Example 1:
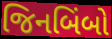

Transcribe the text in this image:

જિનબિંબો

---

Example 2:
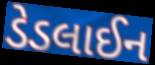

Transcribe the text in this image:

ડેડલાઈન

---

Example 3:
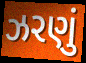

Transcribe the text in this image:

ઝરણું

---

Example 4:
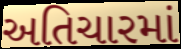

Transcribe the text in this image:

અતિચારમાં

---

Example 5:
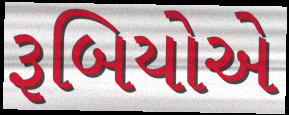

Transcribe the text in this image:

રૂબિયોએ